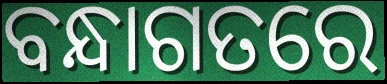
ବନ୍ଧାଗତରେ